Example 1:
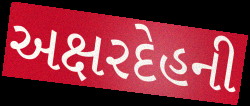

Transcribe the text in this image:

અક્ષરદેહની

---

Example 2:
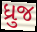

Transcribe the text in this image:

ધ્રુજ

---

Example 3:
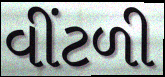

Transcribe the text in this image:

વીંટળી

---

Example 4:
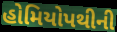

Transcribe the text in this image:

હોમિયોપથીની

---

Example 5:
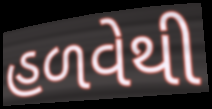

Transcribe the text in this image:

હળવેથી